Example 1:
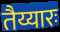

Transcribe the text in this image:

तैय्यारः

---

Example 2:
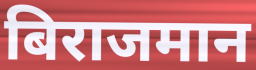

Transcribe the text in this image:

बिराजमान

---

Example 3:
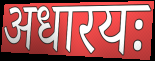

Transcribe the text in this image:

अधारयः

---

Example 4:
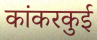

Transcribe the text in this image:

कांकरकुई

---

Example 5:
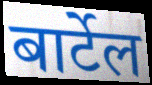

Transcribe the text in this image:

बार्टेल